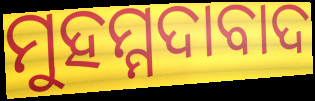
ମୁହମ୍ମଦାବାଦ